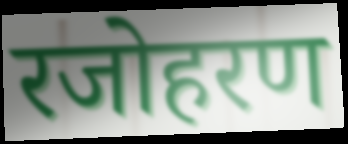
रजोहरण